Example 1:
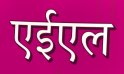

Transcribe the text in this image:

एईएल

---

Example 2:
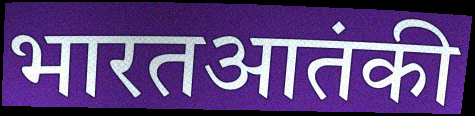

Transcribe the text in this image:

भारतआतंकी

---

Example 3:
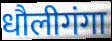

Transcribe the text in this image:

धौलीगंगा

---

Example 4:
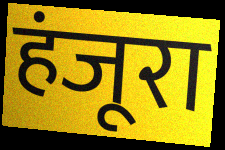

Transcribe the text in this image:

हंजूरा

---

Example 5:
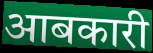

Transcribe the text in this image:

आबकारी